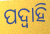
ପଦ୍ଵାହି